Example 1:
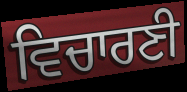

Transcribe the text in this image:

ਵਿਚਾਰਣੀ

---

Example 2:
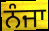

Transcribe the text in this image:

ਨੰਜਾ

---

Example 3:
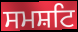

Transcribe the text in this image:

ਸਮਸ਼ਟਿ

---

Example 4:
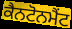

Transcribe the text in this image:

ਕੈਨਟੋਨਮੈਂਟ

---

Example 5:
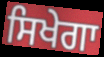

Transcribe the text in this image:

ਸਿਖੇਗਾ